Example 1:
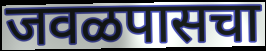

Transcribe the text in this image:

जवळपासचा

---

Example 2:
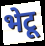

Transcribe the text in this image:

भेटू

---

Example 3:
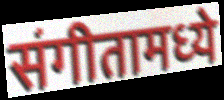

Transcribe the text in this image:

संगीतामध्ये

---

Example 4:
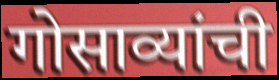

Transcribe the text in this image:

गोसाव्यांची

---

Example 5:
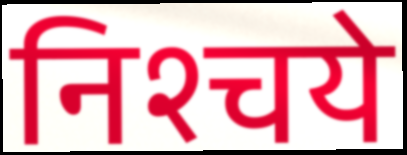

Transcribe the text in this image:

निश्चये